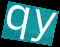
qy